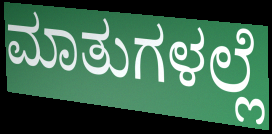
ಮಾತುಗಳಲ್ಲೆ